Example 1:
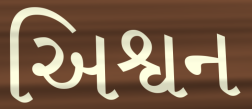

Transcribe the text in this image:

અિશ્વન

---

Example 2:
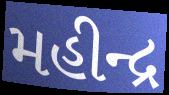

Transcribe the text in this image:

મહીન્દ્ર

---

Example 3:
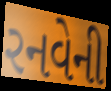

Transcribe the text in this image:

રનવેની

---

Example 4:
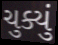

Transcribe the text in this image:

ચુક્યું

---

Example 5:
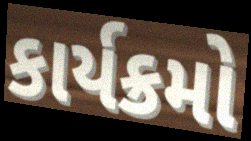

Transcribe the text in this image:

કાર્યક્રમો